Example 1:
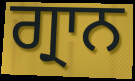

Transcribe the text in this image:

ਗ੍ਰਾਨ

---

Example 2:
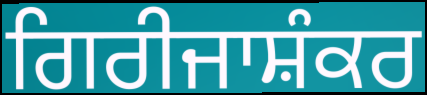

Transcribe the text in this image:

ਗਿਰੀਜਾਸ਼ੰਕਰ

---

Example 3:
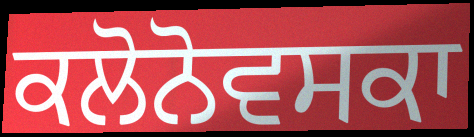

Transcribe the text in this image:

ਕਲੋਨੋਵਸਕਾ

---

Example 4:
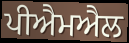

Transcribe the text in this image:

ਪੀਐਮਐਲ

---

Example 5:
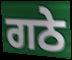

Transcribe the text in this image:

ਗਠੇ